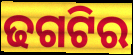
ଢଗଟିର